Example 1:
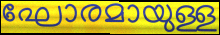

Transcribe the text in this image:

ഘോരമായുള്ള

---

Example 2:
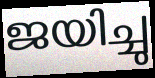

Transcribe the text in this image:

ജയിച്ചു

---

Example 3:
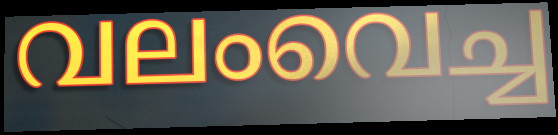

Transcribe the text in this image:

വലംവെച്ച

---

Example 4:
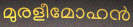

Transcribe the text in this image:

മുരളീമോഹൻ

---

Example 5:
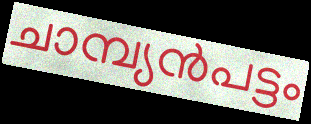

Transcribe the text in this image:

ചാമ്പ്യൻപട്ടം